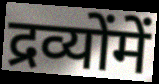
द्रव्योंमें